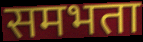
समभता